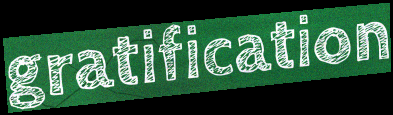
gratification